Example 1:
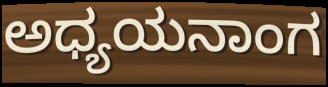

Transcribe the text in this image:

ಅಧ್ಯಯನಾಂಗ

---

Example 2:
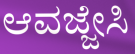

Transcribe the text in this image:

ಆವಜ್ಜೇಸಿ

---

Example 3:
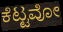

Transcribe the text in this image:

ಕೆಟ್ಟವೋ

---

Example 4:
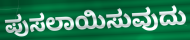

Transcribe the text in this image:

ಪುಸಲಾಯಿಸುವುದು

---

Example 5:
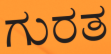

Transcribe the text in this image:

ಗುರತ